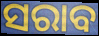
ସରାବ